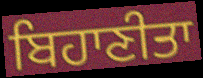
ਬਿਹਾਣੀਤਾ